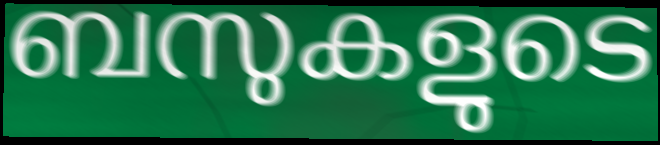
ബസുകളുടെ